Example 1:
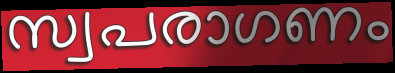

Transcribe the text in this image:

സ്വപരാഗണം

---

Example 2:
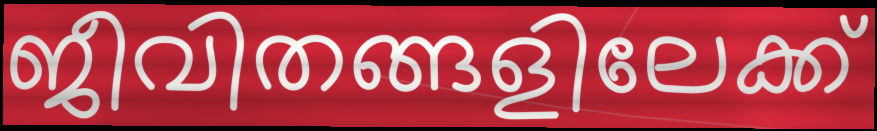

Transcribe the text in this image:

ജീവിതങ്ങളിലേക്ക്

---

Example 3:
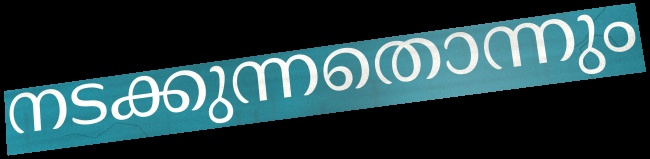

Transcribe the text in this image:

നടക്കുന്നതൊന്നും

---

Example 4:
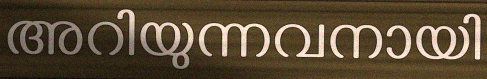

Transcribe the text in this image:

അറിയുന്നവനായി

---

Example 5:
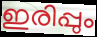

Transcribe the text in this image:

ഇരിപ്പും